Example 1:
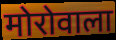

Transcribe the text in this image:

मोरोवाला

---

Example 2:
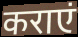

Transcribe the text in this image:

कराएं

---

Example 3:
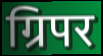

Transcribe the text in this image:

ग्रिपर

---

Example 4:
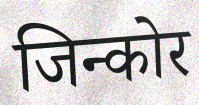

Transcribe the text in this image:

जिन्कोर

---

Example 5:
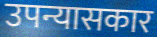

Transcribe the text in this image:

उपन्यासकार